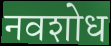
नवशोध